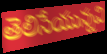
తెలిసేయున్నవి